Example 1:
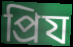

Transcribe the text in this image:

প্রিয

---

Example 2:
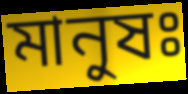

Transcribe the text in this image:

মানুষঃ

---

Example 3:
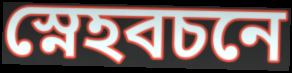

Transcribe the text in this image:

স্নেহবচনে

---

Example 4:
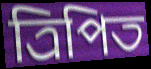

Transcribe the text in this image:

ত্রিপিত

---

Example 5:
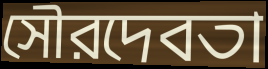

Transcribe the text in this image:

সৌরদেবতা